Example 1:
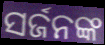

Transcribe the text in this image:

ସର୍ଜନଙ୍କ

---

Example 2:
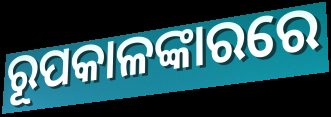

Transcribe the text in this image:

ରୂପକାଳଙ୍କାରରେ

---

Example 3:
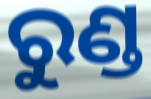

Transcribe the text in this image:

ରୁଣ୍ଡ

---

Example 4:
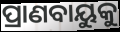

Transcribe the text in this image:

ପ୍ରାଣବାୟୁକୁ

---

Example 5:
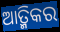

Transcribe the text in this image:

ଆତ୍ମିକର